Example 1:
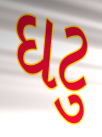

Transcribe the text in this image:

ઘટુ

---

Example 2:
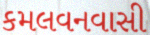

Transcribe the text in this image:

કમલવનવાસી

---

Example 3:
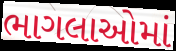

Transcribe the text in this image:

ભાગલાઓમાં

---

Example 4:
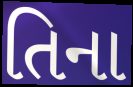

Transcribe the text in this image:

તિના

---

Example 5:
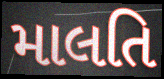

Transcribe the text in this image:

માલતિ